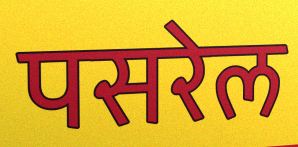
पसरेल